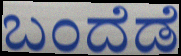
ಬಂದೆಡೆ